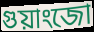
গুয়াংজো